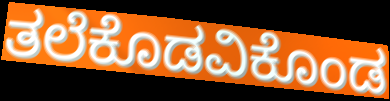
ತಲೆಕೊಡವಿಕೊಂಡ